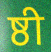
ष्ठी